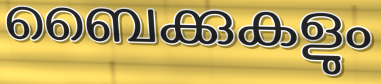
ബൈക്കുകളും